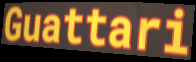
Guattari